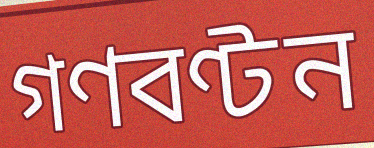
গণবণ্টন